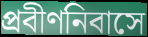
প্রবীণনিবাসে